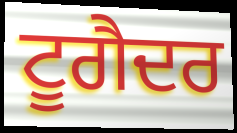
ਟੂਗੈਦਰ